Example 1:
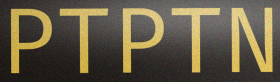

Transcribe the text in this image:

PTPTN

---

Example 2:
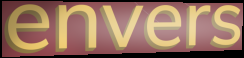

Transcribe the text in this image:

envers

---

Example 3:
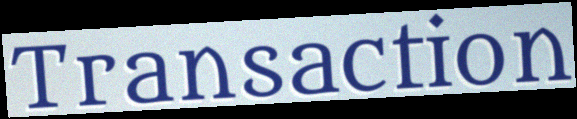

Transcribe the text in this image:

Transaction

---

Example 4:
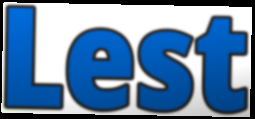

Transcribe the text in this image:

Lest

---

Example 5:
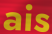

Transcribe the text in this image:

ais